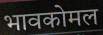
भावकोमल